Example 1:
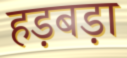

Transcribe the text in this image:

हड़बड़ा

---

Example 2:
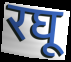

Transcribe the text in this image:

रघू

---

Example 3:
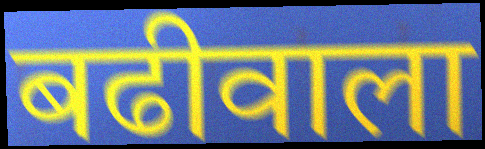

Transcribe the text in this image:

बढीवाला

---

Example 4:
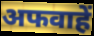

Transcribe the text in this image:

अफवाहें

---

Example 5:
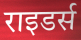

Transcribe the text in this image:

राइडर्स